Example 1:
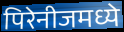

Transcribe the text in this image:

पिरेनीजमध्ये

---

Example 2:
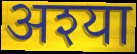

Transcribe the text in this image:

अश्या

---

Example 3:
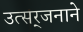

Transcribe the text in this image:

उत्सर्जनाने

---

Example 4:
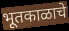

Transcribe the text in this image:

भूतकाळाचे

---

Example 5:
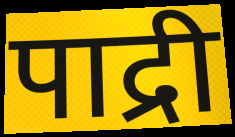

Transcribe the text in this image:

पाद्री